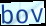
bov